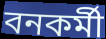
বনকর্মী